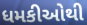
ધમકીઓથી